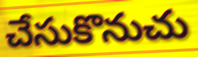
చేసుకొనుచు